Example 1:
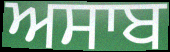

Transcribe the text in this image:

ਅਸਾਬ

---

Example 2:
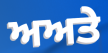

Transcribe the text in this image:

ਅਅਤੇ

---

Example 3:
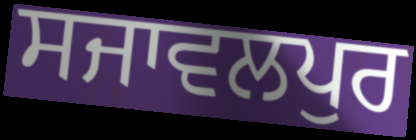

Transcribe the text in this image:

ਸਜਾਵਲਪੁਰ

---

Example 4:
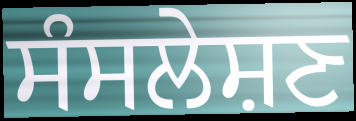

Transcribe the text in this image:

ਸੰਸਲੇਸ਼ਣ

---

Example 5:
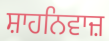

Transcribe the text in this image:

ਸ਼ਾਹਨਿਵਾਜ਼